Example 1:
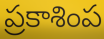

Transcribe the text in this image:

ప్రకాశింప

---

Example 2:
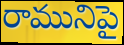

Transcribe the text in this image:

రామునిపై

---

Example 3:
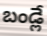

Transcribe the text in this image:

బండ్లే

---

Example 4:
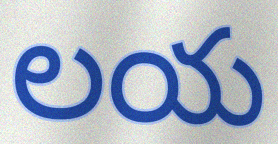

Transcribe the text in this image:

లయ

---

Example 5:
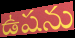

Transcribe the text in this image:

ఉషను